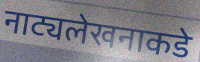
नाट्यलेखनाकडे